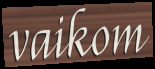
vaikom